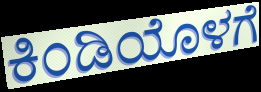
ಕಿಂಡಿಯೊಳಗೆ